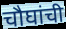
चौघांची